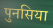
पुनसिया